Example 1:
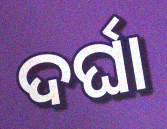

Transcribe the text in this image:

ଦର୍ଘା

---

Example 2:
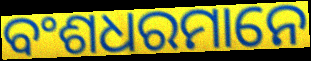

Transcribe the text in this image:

ବଂଶଧରମାନେ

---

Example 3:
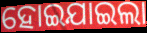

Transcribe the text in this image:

ହୋଇଯାଇଲା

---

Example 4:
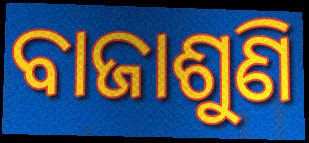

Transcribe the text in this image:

ବାଜାଶୁଣି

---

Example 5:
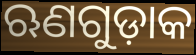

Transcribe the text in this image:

ଋଣଗୁଡ଼ାକ